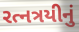
રત્નત્રયીનું